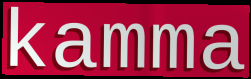
kamma